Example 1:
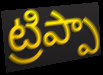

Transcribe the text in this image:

ట్రిప్పా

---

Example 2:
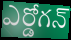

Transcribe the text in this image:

ఎర్డోగన్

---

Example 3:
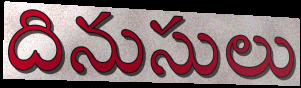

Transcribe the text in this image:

దినుసులు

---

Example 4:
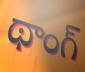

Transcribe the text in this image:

థాంగ్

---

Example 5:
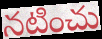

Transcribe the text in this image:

నటించు